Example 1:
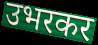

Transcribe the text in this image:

उभरकर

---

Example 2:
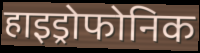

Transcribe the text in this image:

हाइड्रोफोनिक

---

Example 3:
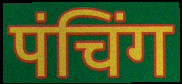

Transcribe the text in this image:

पंचिंग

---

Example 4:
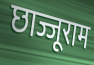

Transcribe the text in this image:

छाज्जूराम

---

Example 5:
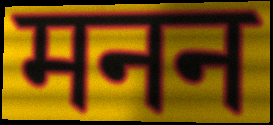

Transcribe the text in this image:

मनन